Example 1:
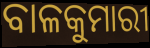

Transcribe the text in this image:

ବାଳକୁମାରୀ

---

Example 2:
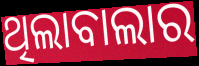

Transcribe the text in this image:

ଥିଲାବାଲାର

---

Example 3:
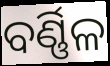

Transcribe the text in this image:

ବର୍ଣ୍ଣିଳ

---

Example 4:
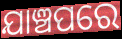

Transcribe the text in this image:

ଯାଞ୍ଚପରେ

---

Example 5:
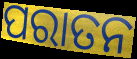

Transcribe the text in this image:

ପରାତନ